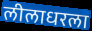
लीलाधरला